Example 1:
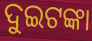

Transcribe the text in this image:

ଦୁଇଟଙ୍କା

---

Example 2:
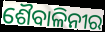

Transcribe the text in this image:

ଶୈବାଳିନୀର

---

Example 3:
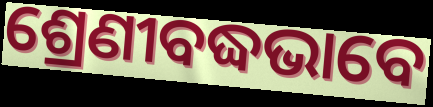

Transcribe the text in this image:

ଶ୍ରେଣୀବଦ୍ଧଭାବେ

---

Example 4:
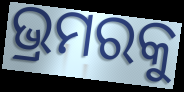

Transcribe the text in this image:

ଭ୍ରମରକୁ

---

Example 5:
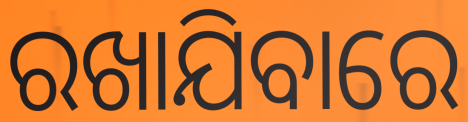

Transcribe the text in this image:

ରଖାଯିବାରେ